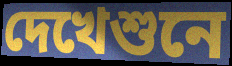
দেখেশুনে